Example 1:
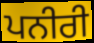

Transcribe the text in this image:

ਪਨੀਰੀ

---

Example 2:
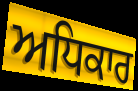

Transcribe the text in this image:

ਅਧਿਕਾਰ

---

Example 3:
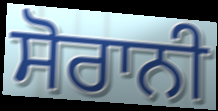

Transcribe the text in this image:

ਸੋਰਾਨੀ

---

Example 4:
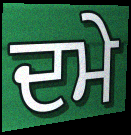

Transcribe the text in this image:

ਦਮੇ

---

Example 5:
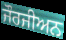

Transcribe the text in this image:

ਜੌਰਜੀਅਨ